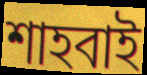
শাহবাই